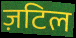
ज़टिल